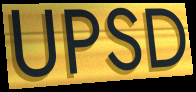
UPSD